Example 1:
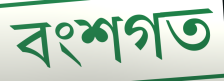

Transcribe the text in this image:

বংশগত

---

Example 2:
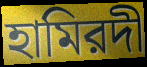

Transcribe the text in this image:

হামিরদী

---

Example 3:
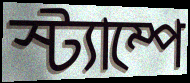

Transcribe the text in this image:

স্ট্যাম্পে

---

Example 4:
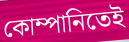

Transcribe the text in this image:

কোম্পানিতেই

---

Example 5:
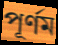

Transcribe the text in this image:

পূর্ণম